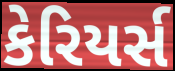
કેરિયર્સ